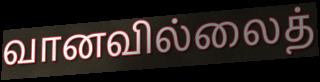
வானவில்லைத்